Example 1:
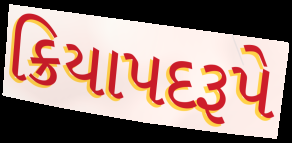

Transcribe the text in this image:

ક્રિયાપદરૂપે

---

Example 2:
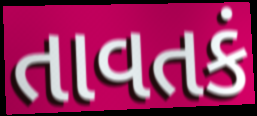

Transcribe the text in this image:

તાવતકં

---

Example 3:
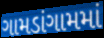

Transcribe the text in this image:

ગામડાંગામમાં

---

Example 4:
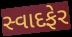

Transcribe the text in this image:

સ્વાદફેર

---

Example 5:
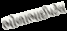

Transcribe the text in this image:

ભોળાભાઈપટેલ